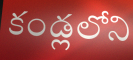
కండ్లలోని